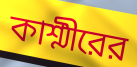
কাশ্মীরের